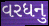
વરધનુ